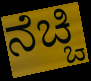
ನೆಚ್ಚಿ